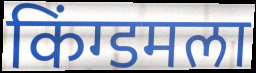
किंग्डमला